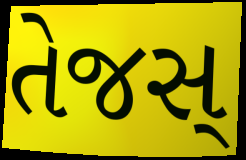
તેજસ્